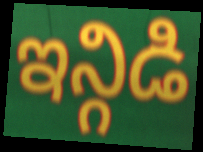
ఇన్గిడి